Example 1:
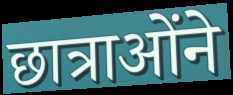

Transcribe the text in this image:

छात्राओंने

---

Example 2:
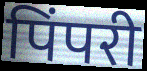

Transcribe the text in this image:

पिंपरी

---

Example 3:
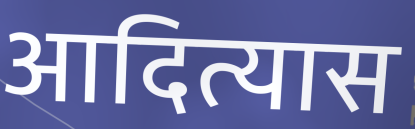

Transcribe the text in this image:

आदित्यास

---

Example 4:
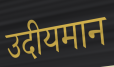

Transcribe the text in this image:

उदीयमान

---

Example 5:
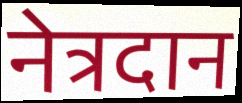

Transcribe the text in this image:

नेत्रदान